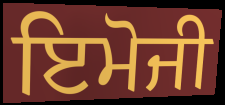
ਇਮੋਜੀ